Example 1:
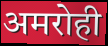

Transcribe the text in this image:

अमरोही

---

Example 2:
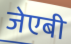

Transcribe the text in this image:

जेएबी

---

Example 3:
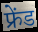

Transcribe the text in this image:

फ्रेंड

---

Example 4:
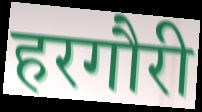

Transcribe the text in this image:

हरगौरी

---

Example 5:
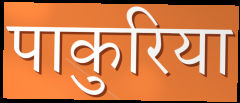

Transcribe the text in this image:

पाकुरिया